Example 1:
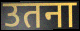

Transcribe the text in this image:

उतना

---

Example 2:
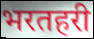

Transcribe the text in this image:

भरतहरी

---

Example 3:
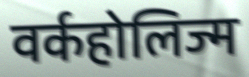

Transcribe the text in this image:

वर्कहोलिज्म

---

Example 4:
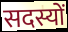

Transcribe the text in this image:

सदस्यों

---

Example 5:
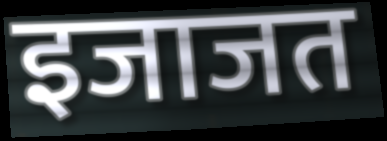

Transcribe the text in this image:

इजाजत